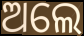
ଅଲେ